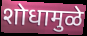
शोधामुळे